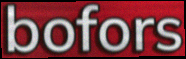
bofors